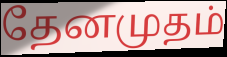
தேனமுதம்